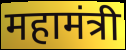
महामंत्री